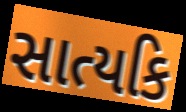
સાત્યકિ